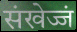
संखेज्जं